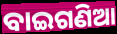
ବାଇଗଣିଆ